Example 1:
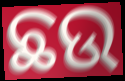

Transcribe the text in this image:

ଛଉ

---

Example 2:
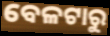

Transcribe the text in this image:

ବେଳଟାରୁ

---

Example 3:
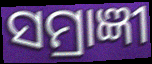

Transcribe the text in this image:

ସମ୍ରାଜ୍ଞୀ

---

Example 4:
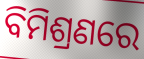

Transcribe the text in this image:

ବିମିଶ୍ରଣରେ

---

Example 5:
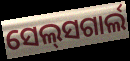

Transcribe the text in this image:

ସେଲ୍‍ସଗାର୍ଲ